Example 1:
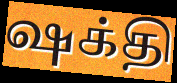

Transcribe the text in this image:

ஷக்தி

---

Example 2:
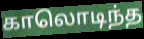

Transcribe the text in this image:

காலொடிந்த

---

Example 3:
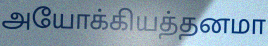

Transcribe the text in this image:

அயோக்கியத்தனமா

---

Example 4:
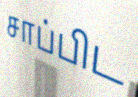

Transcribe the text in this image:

சாப்பிட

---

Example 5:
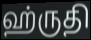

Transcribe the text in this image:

ஹ்ருதி